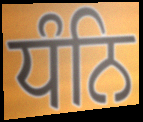
ਧੰਨਿ